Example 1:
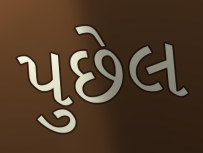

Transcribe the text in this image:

પુછેલ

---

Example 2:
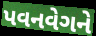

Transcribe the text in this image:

પવનવેગને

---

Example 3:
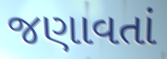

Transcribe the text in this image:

જણાવતાં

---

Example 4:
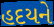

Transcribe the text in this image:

હદયને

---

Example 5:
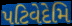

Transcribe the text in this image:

પટિવેદેમિ